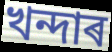
খন্দাৰ